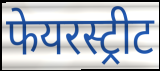
फेयरस्ट्रीट